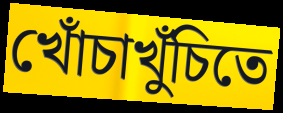
খোঁচাখুঁচিতে